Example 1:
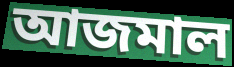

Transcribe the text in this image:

আজমাল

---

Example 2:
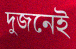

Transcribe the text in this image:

দুজনেই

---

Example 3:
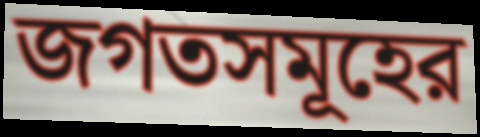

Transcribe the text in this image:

জগতসমূহের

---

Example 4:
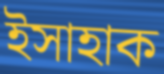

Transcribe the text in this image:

ইসাহাক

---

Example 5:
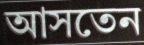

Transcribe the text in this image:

আসতেন